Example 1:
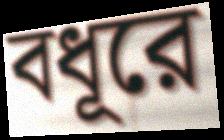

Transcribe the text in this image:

বধূরে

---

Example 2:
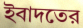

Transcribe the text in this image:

ইবাদতের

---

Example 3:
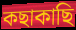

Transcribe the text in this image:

কছাকাছি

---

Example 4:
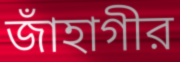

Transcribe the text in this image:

জাঁহাগীর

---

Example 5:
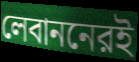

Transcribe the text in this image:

লেবাননেরই